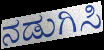
ನಡುಗಿಸಿ